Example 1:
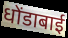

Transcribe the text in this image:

धोंडाबाई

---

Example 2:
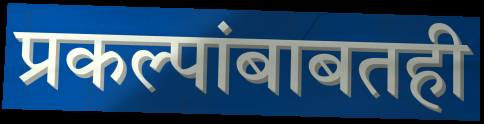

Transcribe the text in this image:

प्रकल्पांबाबतही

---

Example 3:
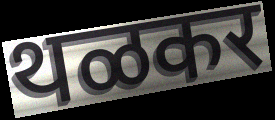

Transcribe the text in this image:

थळकर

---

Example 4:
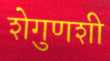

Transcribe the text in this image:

शेगुणशी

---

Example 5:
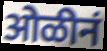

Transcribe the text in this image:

ओळीनं